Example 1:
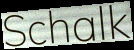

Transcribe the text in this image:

Schalk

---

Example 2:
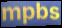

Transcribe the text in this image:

mpbs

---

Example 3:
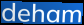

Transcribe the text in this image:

deham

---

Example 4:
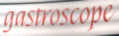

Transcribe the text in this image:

gastroscope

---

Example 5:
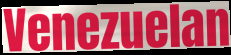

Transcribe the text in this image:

Venezuelan